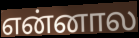
என்னால